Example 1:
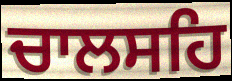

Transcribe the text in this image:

ਚਾਲਸਹਿ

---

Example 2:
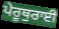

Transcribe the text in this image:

ਪੇਰੂਥੁਰਾਈ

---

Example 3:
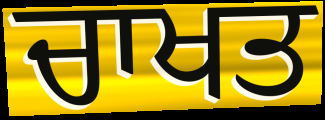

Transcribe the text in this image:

ਚਾਖਤ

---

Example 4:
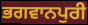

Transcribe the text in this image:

ਭਗਵਾਨਪੁਰੀ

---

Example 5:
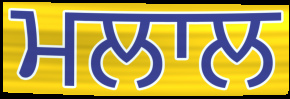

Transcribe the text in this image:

ਮਲਾਲ